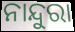
ନାନ୍ଦୁରା